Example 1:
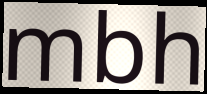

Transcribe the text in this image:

mbh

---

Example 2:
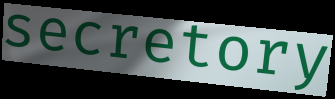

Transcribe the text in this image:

secretory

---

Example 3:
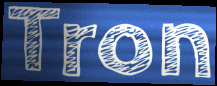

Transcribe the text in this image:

Tron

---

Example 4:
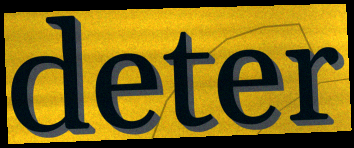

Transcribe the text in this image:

deter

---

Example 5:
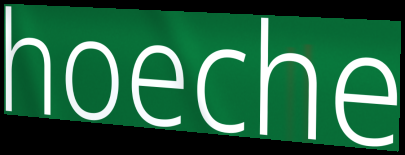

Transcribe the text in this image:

hoeche